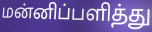
மன்னிப்பளித்து